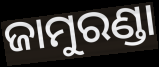
ଜାମୁରଣ୍ଡା